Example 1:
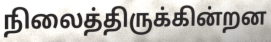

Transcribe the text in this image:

நிலைத்திருக்கின்றன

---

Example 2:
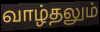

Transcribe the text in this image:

வாழ்தலும்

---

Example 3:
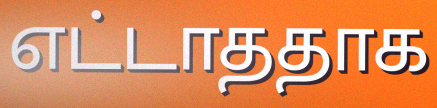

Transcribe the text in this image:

எட்டாததாக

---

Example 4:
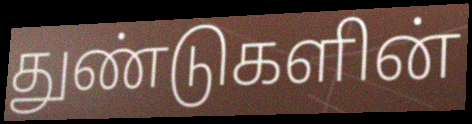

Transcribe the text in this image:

துண்டுகளின்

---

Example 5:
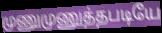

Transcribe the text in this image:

முணுமுணுத்தபடியே